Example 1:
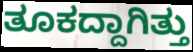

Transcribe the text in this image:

ತೂಕದ್ದಾಗಿತ್ತು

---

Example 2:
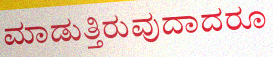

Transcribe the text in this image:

ಮಾಡುತ್ತಿರುವುದಾದರೂ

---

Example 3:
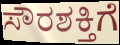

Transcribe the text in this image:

ಸೌರಶಕ್ತಿಗೆ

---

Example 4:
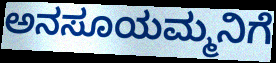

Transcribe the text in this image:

ಅನಸೂಯಮ್ಮನಿಗೆ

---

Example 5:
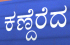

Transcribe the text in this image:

ಕಣ್ದೆರೆದ